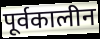
पूर्वकालीन